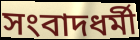
সংবাদধর্মী